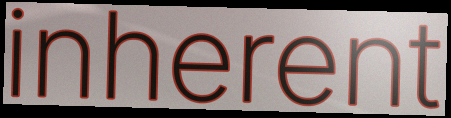
inherent